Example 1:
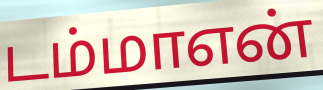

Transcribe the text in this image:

டம்மாஎன்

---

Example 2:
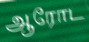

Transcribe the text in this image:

ஆரோட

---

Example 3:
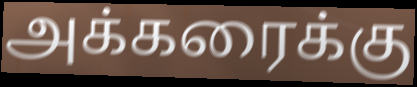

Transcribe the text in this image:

அக்கரைக்கு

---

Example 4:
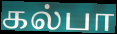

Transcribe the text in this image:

கல்பா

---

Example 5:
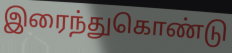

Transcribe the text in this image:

இரைந்துகொண்டு